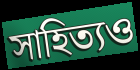
সাহিত্যও